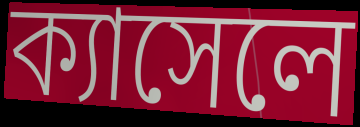
ক্যাসেলে